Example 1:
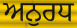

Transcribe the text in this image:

ਅਨੁਰਧ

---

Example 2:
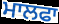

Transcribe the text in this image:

ਮਾਲਫਾ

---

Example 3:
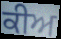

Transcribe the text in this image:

ਕੀਅ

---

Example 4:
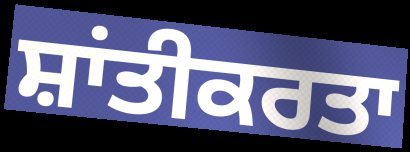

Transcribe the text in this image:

ਸ਼ਾਂਤੀਕਰਤਾ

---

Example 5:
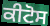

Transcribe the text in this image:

ਕੀਟੋਸ